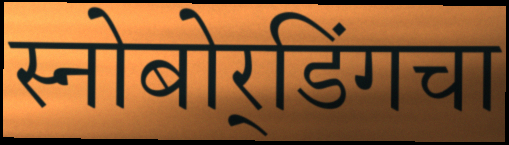
स्नोबोर्डिंगचा